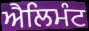
ਐਲਿਮੰਟ